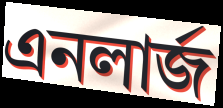
এনলার্জ